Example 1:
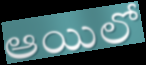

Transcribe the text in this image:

ఆయిలో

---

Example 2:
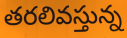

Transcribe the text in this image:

తరలివస్తున్న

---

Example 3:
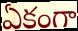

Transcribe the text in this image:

ఏకంగా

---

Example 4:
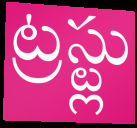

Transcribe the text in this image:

ట్రస్ట్లు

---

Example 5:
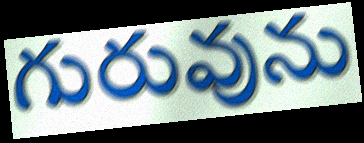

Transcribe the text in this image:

గురువును